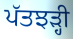
ਪੱਤਝੜ੍ਹੀ